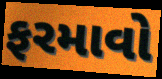
ફરમાવો